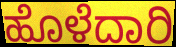
ಹೊಳೆದಾರಿ